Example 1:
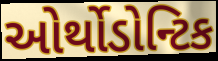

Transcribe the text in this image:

ઓર્થોડોન્ટિક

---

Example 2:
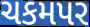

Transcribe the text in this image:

ચકમપર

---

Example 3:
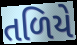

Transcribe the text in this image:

તળિયે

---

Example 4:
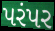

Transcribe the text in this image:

પરંપર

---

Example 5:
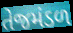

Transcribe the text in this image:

તેજમંડળ